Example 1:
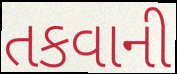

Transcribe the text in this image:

તકવાની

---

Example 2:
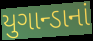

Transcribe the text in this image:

યુગાન્ડાનાં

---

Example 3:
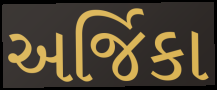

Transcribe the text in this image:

અર્જિકા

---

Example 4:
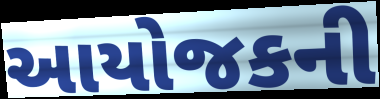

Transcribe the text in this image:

આયોજકની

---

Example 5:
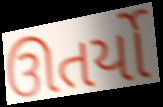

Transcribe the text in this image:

ઊતર્યો